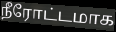
நீரோட்டமாக